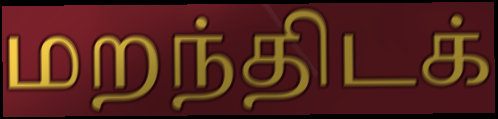
மறந்திடக்